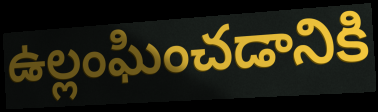
ఉల్లంఘించడానికి